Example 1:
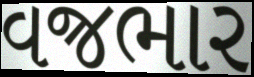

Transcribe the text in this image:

વજ્રભાર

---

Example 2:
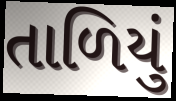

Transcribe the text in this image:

તાળિયું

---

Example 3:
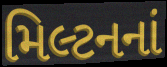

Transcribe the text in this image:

મિલ્ટનનાં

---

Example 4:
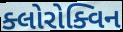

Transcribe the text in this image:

ક્લોરોક્વિન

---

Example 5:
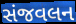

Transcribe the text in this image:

સંજવલન